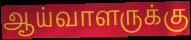
ஆய்வாளருக்கு